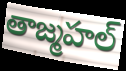
తాజ్మహల్